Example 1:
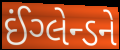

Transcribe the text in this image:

ઈંગ્લેન્ડને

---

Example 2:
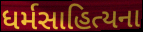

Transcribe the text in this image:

ધર્મસાહિત્યના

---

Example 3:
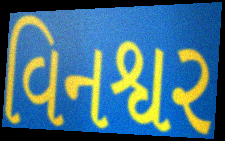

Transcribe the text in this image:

વિનશ્વર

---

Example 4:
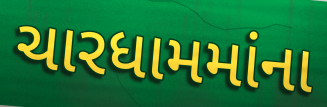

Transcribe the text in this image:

ચારધામમાંના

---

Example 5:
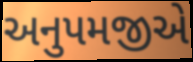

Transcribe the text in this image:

અનુપમજીએ